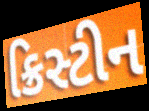
ક્રિસ્ટીન